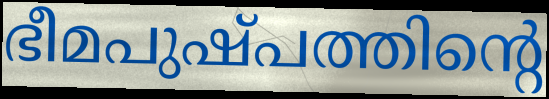
ഭീമപുഷ്പത്തിന്റെ